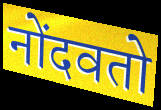
नोंदवतो